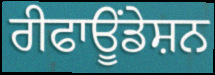
ਰੀਫਾਊਂਡੇਸ਼ਨ